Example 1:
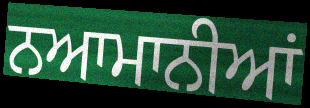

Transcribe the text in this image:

ਨਆਮਾਨੀਆਂ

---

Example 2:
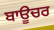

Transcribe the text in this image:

ਬਾਊਚਰ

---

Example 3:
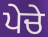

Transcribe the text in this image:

ਪੇਚੇ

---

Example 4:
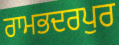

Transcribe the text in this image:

ਰਾਮਭਦਰਪੁਰ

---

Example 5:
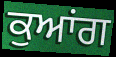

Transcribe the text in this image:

ਕੁਆਂਗ